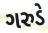
ગરુડે